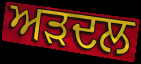
ਅੜਦਲ